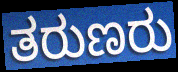
ತರುಣರು